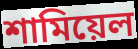
শামিয়েল